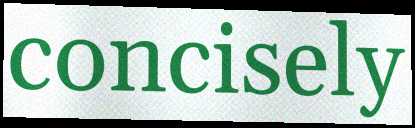
concisely